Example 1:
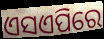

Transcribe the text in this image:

ଏସଏପିରେ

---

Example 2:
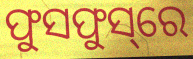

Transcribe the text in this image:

ଫୁସଫୁସ୍‌ରେ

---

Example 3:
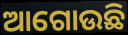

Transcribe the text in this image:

ଆଗୋଉଛି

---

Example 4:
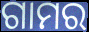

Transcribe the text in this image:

ଗାମର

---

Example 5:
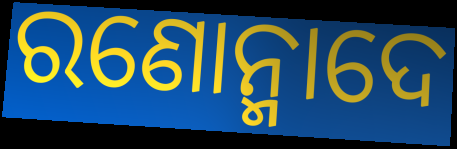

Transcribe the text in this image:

ରଣୋନ୍ମାଦେ